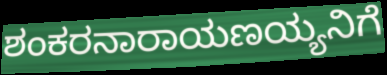
ಶಂಕರನಾರಾಯಣಯ್ಯನಿಗೆ